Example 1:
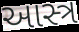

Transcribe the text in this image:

આસ્ત્ર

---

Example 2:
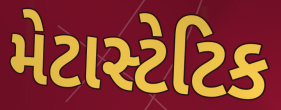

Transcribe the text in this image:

મેટાસ્ટેટિક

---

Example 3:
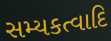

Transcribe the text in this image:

સમ્યકત્વાદિ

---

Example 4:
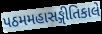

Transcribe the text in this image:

પઠમમહાસઙ્ગીતિકાલે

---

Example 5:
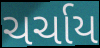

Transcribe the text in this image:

ચર્ચાય